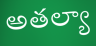
అతల్యా